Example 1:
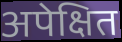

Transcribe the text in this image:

अपेक्षित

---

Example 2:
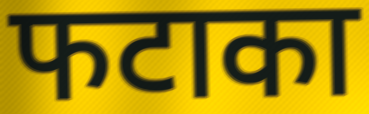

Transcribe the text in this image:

फटाका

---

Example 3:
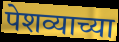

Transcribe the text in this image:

पेशव्याच्या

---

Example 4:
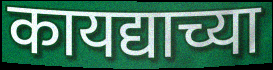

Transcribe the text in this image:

कायद्याच्या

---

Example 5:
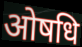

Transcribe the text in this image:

ओषधि